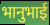
भानुभाई